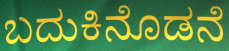
ಬದುಕಿನೊಡನೆ